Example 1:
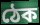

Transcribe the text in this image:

ঠেক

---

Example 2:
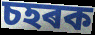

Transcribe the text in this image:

চহৰক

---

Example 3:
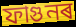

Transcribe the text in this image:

ফাগুনৰ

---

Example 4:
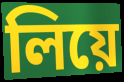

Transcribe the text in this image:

লিয়ে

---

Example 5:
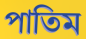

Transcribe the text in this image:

পাতিম